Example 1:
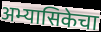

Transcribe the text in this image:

अभ्यासिकेचा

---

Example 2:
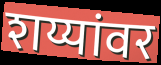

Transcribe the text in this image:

शय्यांवर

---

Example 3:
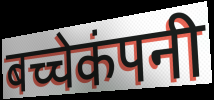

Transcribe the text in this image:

बच्चेकंपनी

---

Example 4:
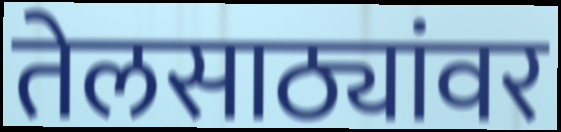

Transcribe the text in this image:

तेलसाठ्यांवर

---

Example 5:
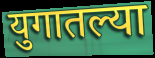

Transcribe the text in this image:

युगातल्या